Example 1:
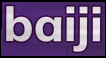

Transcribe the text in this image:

baiji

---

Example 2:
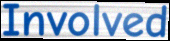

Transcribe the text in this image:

Involved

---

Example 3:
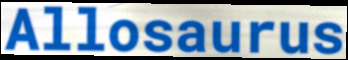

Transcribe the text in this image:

Allosaurus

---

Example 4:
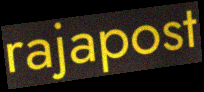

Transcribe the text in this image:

rajapost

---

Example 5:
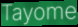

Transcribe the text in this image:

Tayome